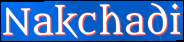
Nakchadi